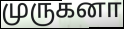
முருகனா